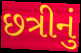
છત્રીનું